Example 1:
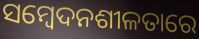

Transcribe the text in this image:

ସମ୍ବେଦନଶୀଳତାରେ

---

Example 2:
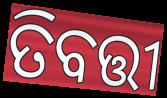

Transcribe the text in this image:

ତିବତ୍ତୀ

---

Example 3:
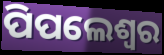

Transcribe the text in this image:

ପିପଲେଶ୍ୱର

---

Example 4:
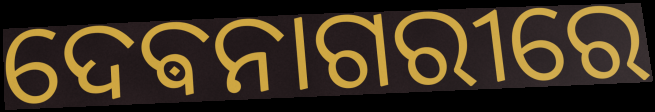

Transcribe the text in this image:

ଦେଵନାଗରୀରେ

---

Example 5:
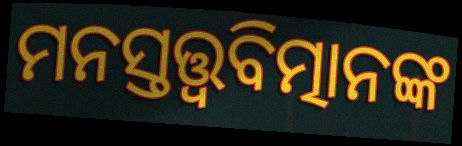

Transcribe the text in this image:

ମନସ୍ତତ୍ତ୍ବବିତ୍ମାନଙ୍କ